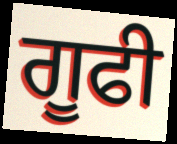
ਗੂਫੀ